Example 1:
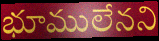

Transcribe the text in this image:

భూములేనని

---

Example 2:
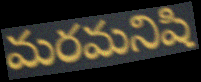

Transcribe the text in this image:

మరమనిషి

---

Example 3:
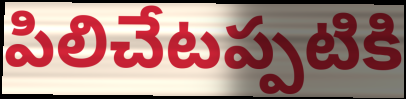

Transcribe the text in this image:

పిలిచేటప్పటికి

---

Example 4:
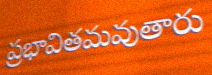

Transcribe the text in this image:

ప్రభావితమవుతారు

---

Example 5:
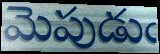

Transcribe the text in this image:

మెపుడుఁ